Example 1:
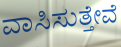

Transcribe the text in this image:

ವಾಸಿಸುತ್ತೇವೆ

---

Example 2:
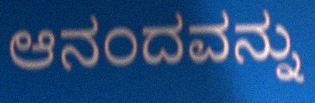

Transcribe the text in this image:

ಆನಂದವನ್ನು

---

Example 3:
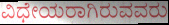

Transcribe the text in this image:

ವಿಧೇಯರಾಗಿರುವವರು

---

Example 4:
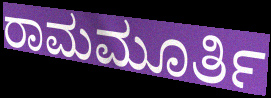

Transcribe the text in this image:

ರಾಮಮೂರ್ತಿ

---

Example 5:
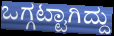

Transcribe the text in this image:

ಒಗ್ಗಟ್ಟಾಗಿದ್ದು